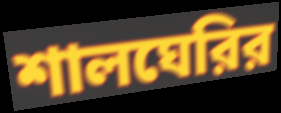
শালঘেরির